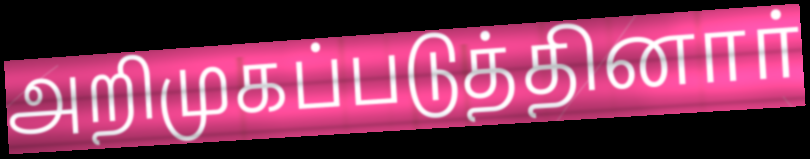
அறிமுகப்படுத்தினார்